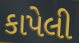
કાપેલી